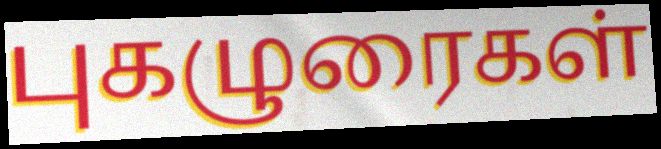
புகழுரைகள்